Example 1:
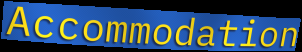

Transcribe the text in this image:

Accommodation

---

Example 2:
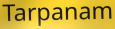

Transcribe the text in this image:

Tarpanam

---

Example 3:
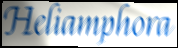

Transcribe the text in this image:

Heliamphora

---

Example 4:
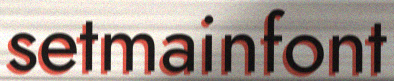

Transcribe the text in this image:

setmainfont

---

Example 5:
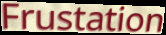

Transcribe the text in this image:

Frustation